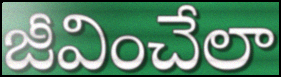
జీవించేలా